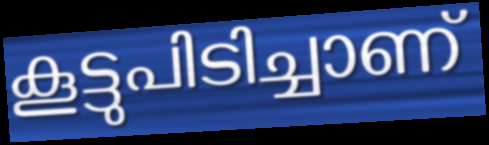
കൂട്ടുപിടിച്ചാണ്